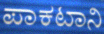
ಪಾಕಟಾನಿ